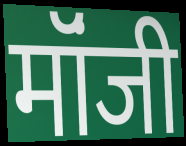
मॉंजी